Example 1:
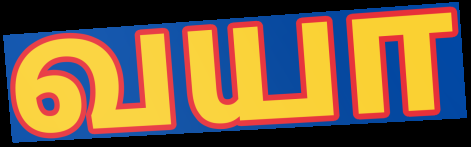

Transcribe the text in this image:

வயா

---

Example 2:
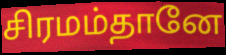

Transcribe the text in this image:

சிரமம்தானே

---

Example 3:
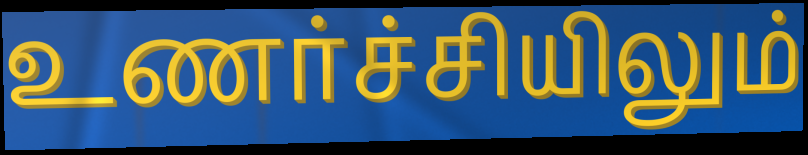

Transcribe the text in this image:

உணர்ச்சியிலும்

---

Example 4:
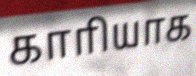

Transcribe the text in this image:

காரியாக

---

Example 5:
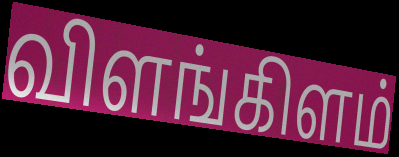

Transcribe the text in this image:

விளங்கிளம்